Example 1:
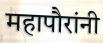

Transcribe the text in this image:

महापौरांनी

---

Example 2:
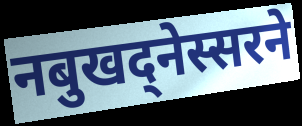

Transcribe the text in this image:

नबुखद्नेस्सरने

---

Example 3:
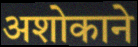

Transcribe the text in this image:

अशोकाने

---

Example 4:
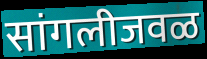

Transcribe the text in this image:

सांगलीजवळ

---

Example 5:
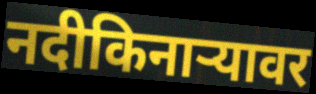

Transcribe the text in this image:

नदीकिनाऱ्यावर